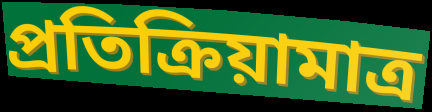
প্রতিক্রিয়ামাত্র